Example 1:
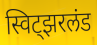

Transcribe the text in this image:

स्विट्झरलंड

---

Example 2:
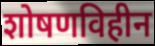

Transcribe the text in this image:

शोषणविहीन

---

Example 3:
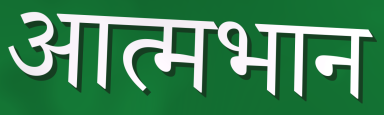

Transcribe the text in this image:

आत्मभान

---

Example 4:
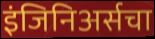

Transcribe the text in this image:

इंजिनिअर्सचा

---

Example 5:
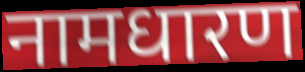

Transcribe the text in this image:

नामधारण